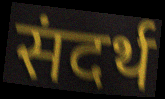
संदर्थ